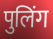
पुलिंग